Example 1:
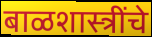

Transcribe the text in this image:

बाळशास्त्रींचे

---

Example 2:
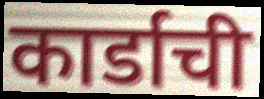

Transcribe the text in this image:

कार्डाची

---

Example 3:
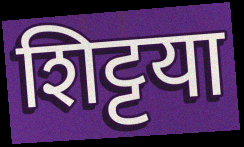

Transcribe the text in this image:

शिट्टया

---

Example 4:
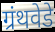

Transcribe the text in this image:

ग्रंथवेडे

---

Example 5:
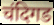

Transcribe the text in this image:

चंदिगड